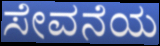
ಸೇವನೆಯ